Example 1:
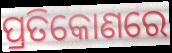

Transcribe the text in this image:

ପ୍ରତିକୋଣରେ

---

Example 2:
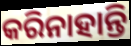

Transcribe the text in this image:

କରିନାହାନ୍ତି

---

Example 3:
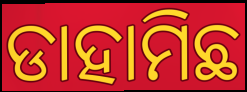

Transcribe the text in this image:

ଡାହାମିଛ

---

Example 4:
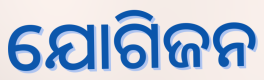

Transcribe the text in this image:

ଯୋଗିଜନ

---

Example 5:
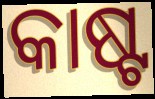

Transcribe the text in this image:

କାଷ୍ଟ